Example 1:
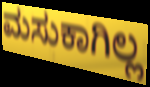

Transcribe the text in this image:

ಮಸುಕಾಗಿಲ್ಲ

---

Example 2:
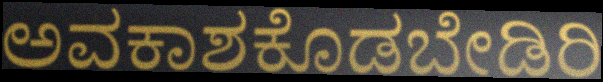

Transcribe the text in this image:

ಅವಕಾಶಕೊಡಬೇಡಿರಿ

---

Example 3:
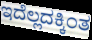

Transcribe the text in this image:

ಇದೆಲ್ಲದಕ್ಕಿಂತ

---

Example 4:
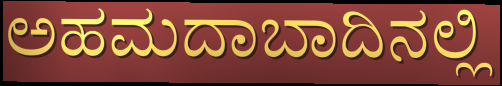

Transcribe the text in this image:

ಅಹಮದಾಬಾದಿನಲ್ಲಿ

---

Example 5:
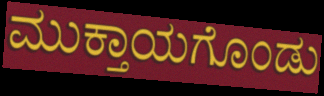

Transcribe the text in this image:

ಮುಕ್ತಾಯಗೊಂಡು